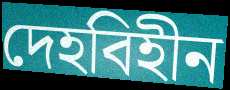
দেহবিহীন